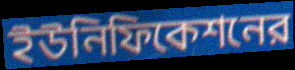
ইউনিফিকেশনের